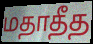
மதாதீத